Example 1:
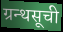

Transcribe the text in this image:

ग्रन्थसूची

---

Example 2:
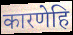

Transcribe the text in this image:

कारणेहि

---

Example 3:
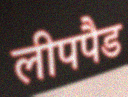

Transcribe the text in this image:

लीपपैड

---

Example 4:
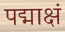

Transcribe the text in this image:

पद्माक्षं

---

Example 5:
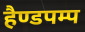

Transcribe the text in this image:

हैण्डपम्प